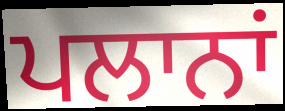
ਪਲਾਨਾਂ